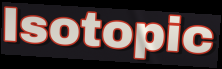
Isotopic